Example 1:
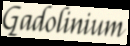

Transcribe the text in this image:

Gadolinium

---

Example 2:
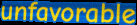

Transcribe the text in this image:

unfavorable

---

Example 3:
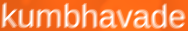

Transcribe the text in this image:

kumbhavade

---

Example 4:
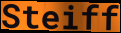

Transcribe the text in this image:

Steiff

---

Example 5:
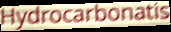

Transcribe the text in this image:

Hydrocarbonatis